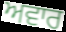
ਅਵਾਰ